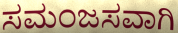
ಸಮಂಜಸವಾಗಿ